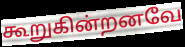
கூறுகின்றனவே